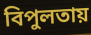
বিপুলতায়